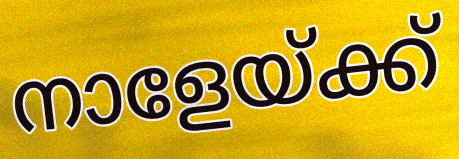
നാളേയ്ക്ക്